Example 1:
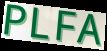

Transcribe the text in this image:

PLFA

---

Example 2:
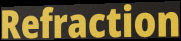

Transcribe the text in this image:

Refraction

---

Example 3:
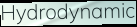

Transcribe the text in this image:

Hydrodynamic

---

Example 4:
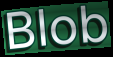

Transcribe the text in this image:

Blob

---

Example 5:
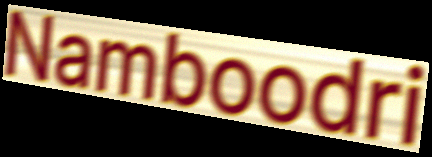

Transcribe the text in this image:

Namboodri